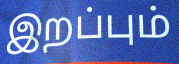
இறப்பும்